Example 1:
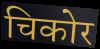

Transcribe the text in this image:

चिकोर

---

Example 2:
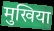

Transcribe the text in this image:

मुखिया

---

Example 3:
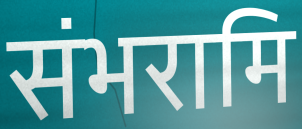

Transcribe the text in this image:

संभरामि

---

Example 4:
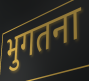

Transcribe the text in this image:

भुगतना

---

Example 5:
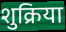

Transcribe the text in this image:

शुक्रिया